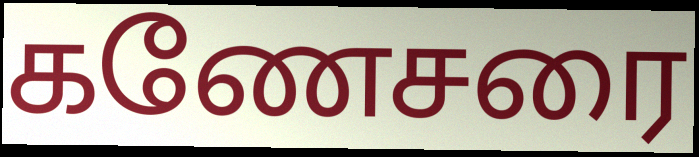
கணேசரை